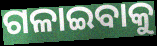
ଗଳାଇବାକୁ